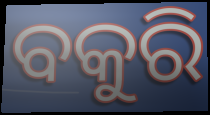
ବକୁରି